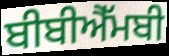
ਬੀਬੀਐੱਮਬੀ